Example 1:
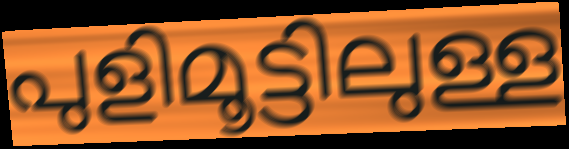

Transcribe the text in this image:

പുളിമൂട്ടിലുള്ള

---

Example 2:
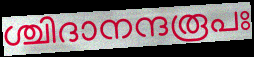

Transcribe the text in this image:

ശ്ചിദാനന്ദരൂപഃ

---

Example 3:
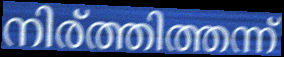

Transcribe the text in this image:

നിര്ത്തിത്തന്ന്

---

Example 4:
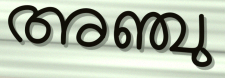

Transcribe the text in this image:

അഞ്ചു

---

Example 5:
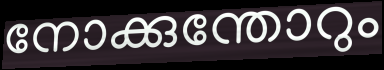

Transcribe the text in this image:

നോക്കുന്തോറും